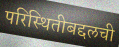
परिस्थितीबद्दलची